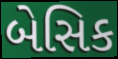
બેસિક